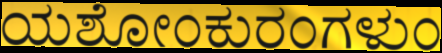
ಯಶೋಂಕುರಂಗಳುಂ